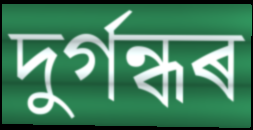
দুৰ্গন্ধৰ